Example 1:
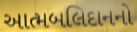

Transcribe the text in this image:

આત્મબલિદાનનો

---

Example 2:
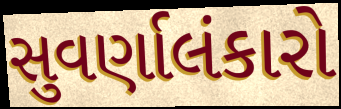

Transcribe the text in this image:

સુવર્ણાલંકારો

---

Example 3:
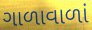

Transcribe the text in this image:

ગાળાવાળાં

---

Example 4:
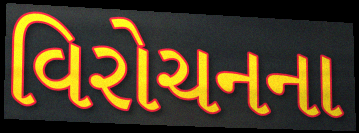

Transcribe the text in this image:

વિરોચનના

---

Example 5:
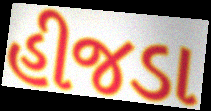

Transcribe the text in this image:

હીજડા